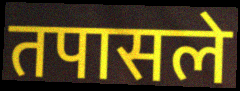
तपासले